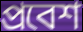
প্রবেশ